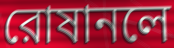
রোষানলে